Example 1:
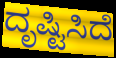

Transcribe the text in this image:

ದೃಷ್ಟಿಸಿದೆ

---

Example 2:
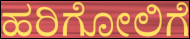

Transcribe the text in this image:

ಹರಿಗೋಲಿಗೆ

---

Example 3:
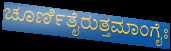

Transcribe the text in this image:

ಚೂರ್ಣಿತೈರುತ್ತಮಾಂಗೈಃ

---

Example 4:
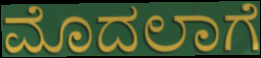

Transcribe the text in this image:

ಮೊದಲಾಗೆ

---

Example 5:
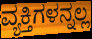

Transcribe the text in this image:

ವ್ಯಕ್ತಿಗಳನ್ನಲ್ಲ